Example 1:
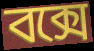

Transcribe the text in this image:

বক্সে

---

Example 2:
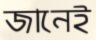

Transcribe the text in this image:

জানেই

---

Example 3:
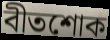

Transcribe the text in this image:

বীতশোক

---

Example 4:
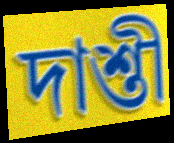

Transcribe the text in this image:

দাশ্তী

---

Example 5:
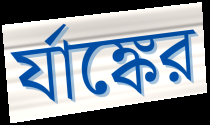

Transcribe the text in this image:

র্যাঙ্কের